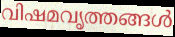
വിഷമവൃത്തങ്ങൾ